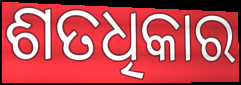
ଶତଧିକାର